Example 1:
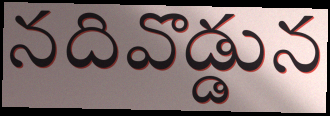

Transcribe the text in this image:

నదివొడ్డున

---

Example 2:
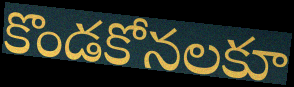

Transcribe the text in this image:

కొండకోనలకూ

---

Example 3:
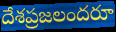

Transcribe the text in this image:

దేశప్రజలందరూ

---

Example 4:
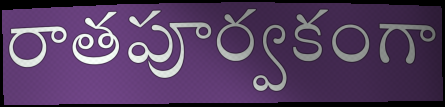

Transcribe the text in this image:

రాతపూర్వకంగా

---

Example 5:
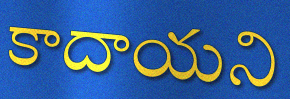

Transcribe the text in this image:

కాదాయని